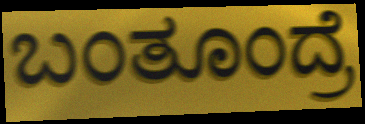
ಬಂತೂಂದ್ರೆ